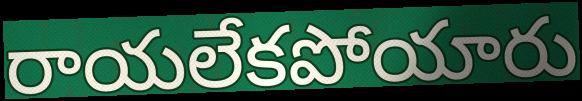
రాయలేకపోయారు